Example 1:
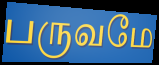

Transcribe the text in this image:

பருவமே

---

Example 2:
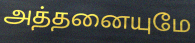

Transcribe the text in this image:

அத்தனையுமே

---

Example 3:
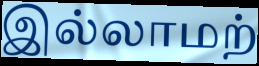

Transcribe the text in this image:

இல்லாமற்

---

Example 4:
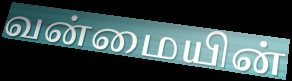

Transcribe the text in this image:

வன்மையின்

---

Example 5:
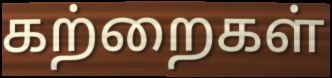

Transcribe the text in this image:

கற்றைகள்